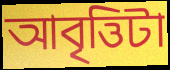
আবৃত্তিটা